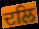
ਦਲਿ